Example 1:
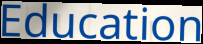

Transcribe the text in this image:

Education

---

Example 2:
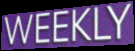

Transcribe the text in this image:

WEEKLY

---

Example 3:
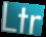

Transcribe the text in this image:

Ltr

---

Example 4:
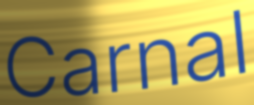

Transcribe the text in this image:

Carnal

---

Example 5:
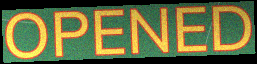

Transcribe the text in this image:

OPENED